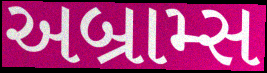
અબ્રામ્સ